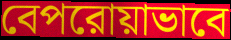
বেপরোয়াভাবে